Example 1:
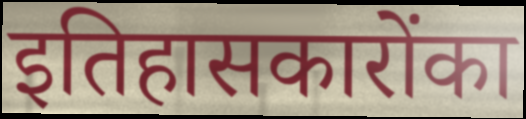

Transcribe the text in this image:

इतिहासकारोंका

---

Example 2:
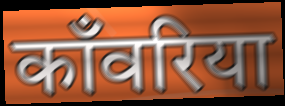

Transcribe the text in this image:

काँवरिया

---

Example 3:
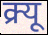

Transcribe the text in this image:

क्र्यू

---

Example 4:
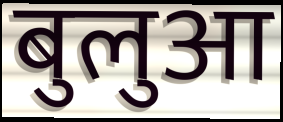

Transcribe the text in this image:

बुलुआ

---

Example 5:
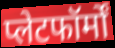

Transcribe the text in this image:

प्लेटफॉर्मों